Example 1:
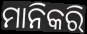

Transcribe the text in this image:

ମାନିକରି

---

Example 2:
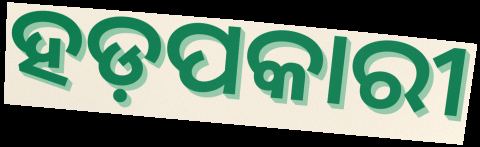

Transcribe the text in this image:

ହଡ଼ପକାରୀ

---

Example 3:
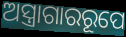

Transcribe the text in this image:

ଅସ୍ତ୍ରାଗାରରୂପେ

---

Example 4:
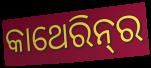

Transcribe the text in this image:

କାଥେରିନ୍‌ର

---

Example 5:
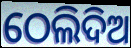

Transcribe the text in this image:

ଠେଲିଦିଅ